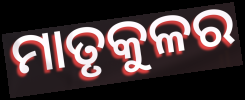
ମାତୃକୁଳର